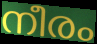
നീരം